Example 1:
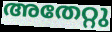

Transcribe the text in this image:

അതേറ്റു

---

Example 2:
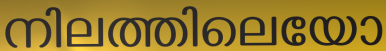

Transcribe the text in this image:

നിലത്തിലെയോ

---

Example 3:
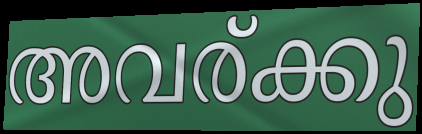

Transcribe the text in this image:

അവര്ക്കു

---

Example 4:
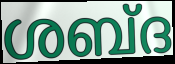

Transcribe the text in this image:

ശബ്‌ദ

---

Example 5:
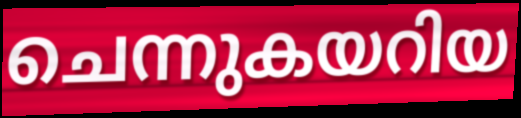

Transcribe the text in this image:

ചെന്നുകയറിയ